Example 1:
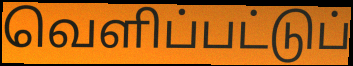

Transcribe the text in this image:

வெளிப்பட்டுப்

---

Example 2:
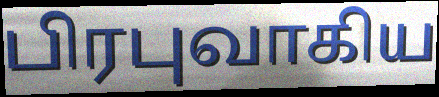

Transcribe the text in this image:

பிரபுவாகிய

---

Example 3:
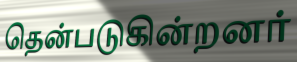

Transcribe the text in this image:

தென்படுகின்றனர்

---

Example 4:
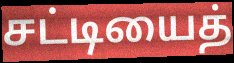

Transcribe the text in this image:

சட்டியைத்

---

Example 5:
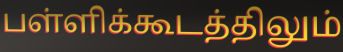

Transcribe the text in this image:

பள்ளிக்கூடத்திலும்